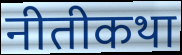
नीतीकथा